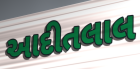
આદીતલાલ